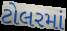
ટોલરમાં